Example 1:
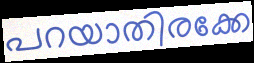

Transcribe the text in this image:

പറയാതിരക്കേ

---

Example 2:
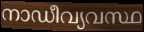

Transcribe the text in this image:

നാഡീവ്യവസ്ഥ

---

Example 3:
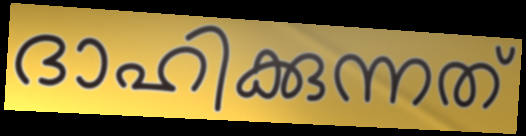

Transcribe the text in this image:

ദാഹിക്കുന്നത്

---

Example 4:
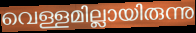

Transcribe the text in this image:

വെള്ളമില്ലായിരുന്നു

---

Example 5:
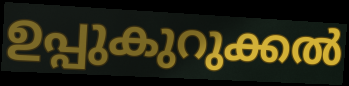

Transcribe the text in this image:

ഉപ്പുകുറുക്കൽ